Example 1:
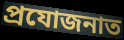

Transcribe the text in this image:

প্ৰযোজনাত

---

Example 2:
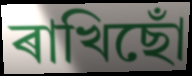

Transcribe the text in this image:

ৰাখিছোঁ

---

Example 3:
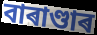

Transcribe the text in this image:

বাৰাণ্ডাৰ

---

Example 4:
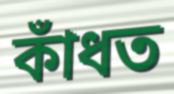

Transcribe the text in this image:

কাঁধত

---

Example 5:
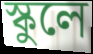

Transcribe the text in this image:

স্কুলে